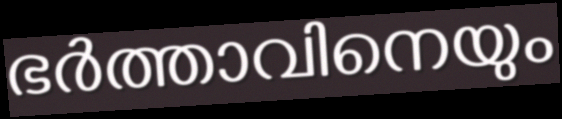
ഭർത്താവിനെയും